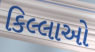
કિલ્લાઓ